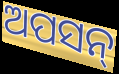
ଅପସନ୍